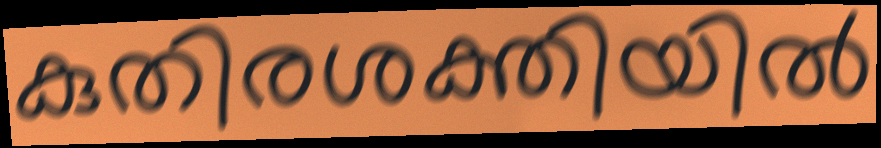
കുതിരശക്തിയിൽ